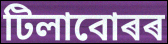
টিলাবোৰৰ